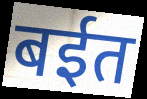
बईत